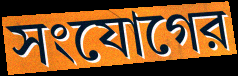
সংযোগের